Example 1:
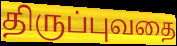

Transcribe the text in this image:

திருப்புவதை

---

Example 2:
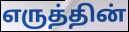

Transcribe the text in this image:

எருத்தின்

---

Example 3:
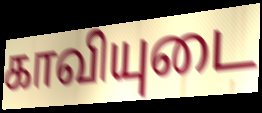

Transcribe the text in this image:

காவியுடை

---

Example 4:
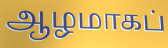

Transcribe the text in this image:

ஆழமாகப்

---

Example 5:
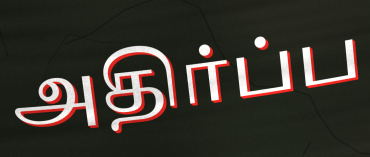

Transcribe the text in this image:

அதிர்ப்ப